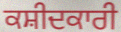
ਕਸ਼ੀਦਕਾਰੀ